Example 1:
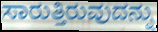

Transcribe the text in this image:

ಸಾರುತ್ತಿರುವುದನ್ನು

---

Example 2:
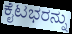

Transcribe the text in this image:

ಕೈಟಭರನ್ನು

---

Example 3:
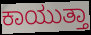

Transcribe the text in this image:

ಕಾಯುತ್ತಾ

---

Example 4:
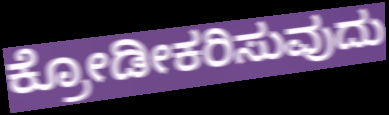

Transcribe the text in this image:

ಕ್ರೋಡೀಕರಿಸುವುದು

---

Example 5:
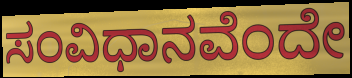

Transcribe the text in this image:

ಸಂವಿಧಾನವೆಂದೇ